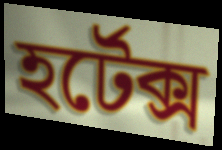
হর্টেক্স